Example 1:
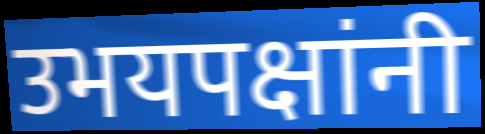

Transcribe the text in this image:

उभयपक्षांनी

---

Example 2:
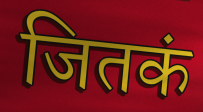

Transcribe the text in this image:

जितकं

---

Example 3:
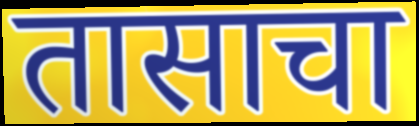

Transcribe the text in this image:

तासाचा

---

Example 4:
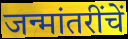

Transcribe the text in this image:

जन्मांतरींचें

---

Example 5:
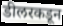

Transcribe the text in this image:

डीलरकडून